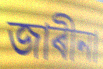
জাৰীনা